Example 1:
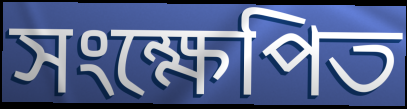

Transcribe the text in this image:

সংক্ষেপিত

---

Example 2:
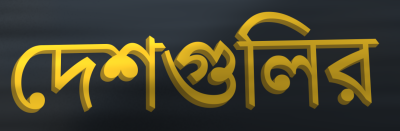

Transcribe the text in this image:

দেশগুলির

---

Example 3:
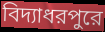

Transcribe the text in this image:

বিদ্যাধরপুরে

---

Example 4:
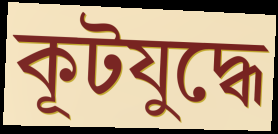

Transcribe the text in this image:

কূটযুদ্ধে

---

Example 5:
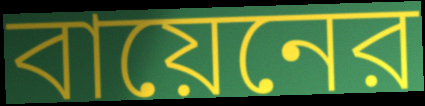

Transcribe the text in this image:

বায়েনের